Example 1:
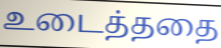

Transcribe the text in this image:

உடைத்ததை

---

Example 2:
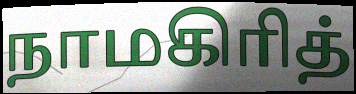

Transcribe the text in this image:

நாமகிரித்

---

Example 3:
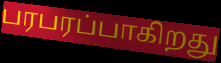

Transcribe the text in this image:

பரபரப்பாகிறது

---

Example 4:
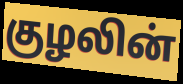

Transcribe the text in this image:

குழலின்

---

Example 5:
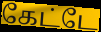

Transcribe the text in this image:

கேட்டே